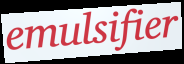
emulsifier